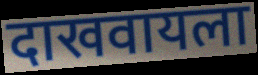
दाखवायला